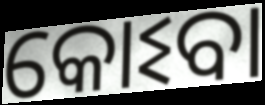
କୋଽବା